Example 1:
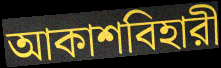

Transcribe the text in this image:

আকাশবিহারী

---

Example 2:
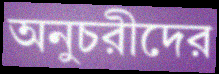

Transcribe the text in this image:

অনুচরীদের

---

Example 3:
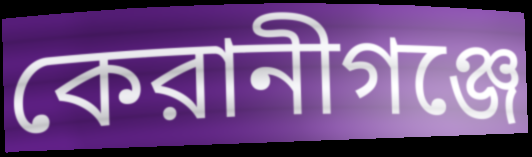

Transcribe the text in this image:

কেরানীগঞ্জে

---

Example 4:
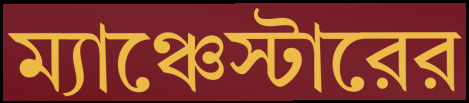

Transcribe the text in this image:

ম্যাঞ্চেস্টারের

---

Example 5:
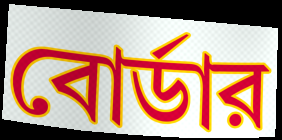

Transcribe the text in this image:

বোর্ডার